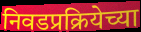
निवडप्रक्रियेच्या